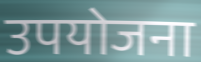
उपयोजना